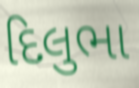
દિલુભા